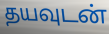
தயவுடன்